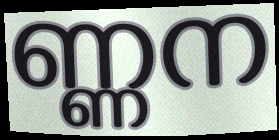
ണ്ണന